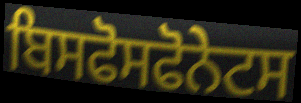
ਬਿਸਫੋਸਫੋਨੇਟਸ